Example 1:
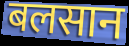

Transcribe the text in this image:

बलसान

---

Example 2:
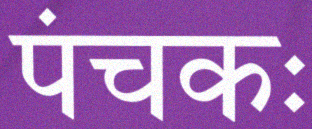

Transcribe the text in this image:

पंचकः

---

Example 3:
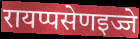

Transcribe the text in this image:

रायप्पसेणइज्जे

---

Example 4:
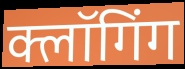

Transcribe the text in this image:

क्लॉगिंग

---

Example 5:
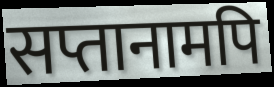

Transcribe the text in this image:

सप्तानामपि